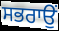
ਸਭਰਾਉਂ